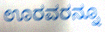
ಊರವರನ್ನೂ